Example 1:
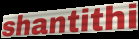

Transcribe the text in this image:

shantithi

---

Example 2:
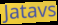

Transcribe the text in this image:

Jatavs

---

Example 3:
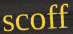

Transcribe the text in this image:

scoff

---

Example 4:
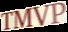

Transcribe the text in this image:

TMVP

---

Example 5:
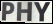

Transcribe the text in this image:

PHY